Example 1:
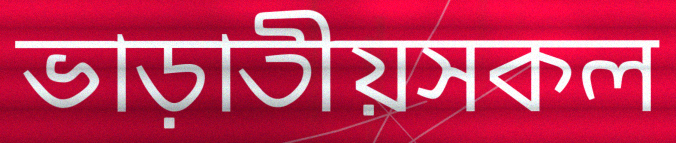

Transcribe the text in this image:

ভাড়াতীয়সকল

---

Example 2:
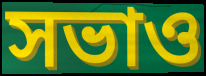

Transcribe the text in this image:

সভাও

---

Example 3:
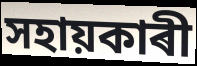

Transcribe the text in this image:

সহায়কাৰী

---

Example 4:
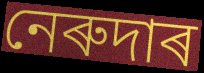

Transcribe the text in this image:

নেৰুদাৰ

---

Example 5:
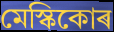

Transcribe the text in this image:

মেস্কিকোৰ